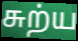
சுற்ய